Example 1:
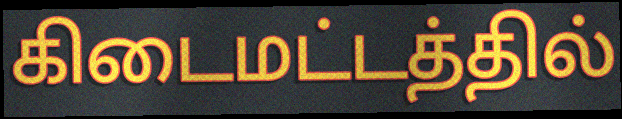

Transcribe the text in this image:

கிடைமட்டத்தில்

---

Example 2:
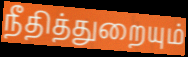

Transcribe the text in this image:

நீதித்துறையும்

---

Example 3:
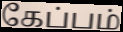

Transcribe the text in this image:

கேப்பம்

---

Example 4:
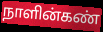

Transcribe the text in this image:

நாளின்கண்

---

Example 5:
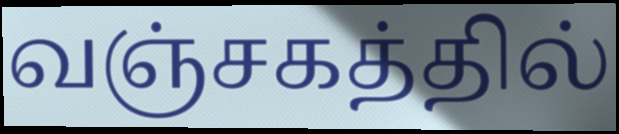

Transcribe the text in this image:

வஞ்சகத்தில்